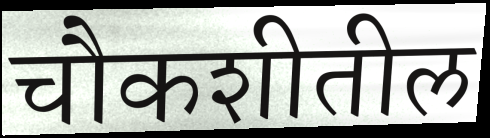
चौकशीतील